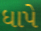
ધાપે